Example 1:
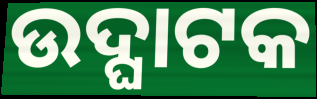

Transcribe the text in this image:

ଉଦ୍ଘାଟକ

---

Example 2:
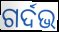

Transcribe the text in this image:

ଗର୍ଦଭ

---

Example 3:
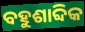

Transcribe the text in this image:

ବହୁଶାବ୍ଦିକ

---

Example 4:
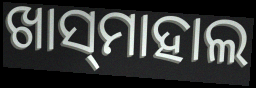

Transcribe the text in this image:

ଖାସ୍‌ମାହାଲ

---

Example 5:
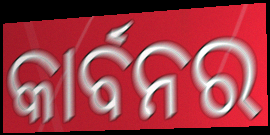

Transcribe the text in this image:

କାର୍ବନର